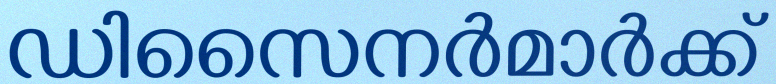
ഡിസൈനർമാർക്ക്